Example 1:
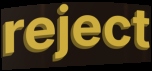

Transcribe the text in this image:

reject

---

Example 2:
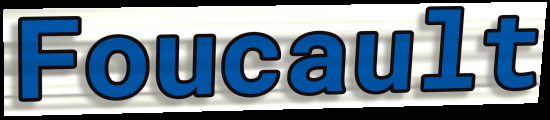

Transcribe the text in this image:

Foucault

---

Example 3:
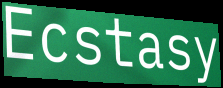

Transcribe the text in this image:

Ecstasy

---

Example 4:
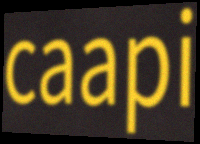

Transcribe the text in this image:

caapi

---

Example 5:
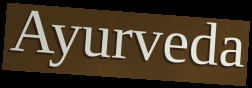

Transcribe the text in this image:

Ayurveda